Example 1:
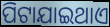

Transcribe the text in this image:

ପିଟାଯାଇଥାଏ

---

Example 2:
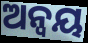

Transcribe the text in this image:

ଅନ୍ୱୟ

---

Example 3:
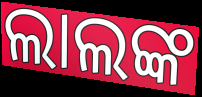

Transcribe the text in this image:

ଲାଲଙ୍କ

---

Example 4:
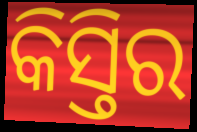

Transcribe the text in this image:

କିସ୍ତିର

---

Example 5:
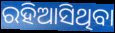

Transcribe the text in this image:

ରହିଆସିଥିବା